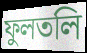
ফুলতলি